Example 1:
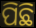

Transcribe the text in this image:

ପିଛି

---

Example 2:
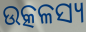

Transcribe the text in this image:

ଉତ୍କଳସ୍ୟ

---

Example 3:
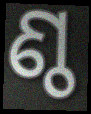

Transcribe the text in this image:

ଣ୍ଠ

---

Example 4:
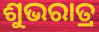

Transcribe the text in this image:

ଶୁଭରାତ୍ର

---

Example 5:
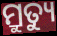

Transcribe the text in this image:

ମ୍ରୁତ୍ୟୁ